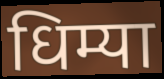
धिम्या